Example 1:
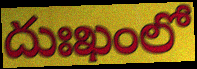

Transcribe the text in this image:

దుఃఖంలో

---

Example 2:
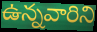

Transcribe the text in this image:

ఉన్నవారిని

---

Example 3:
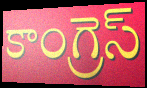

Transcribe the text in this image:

కాంగ్రెస్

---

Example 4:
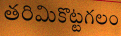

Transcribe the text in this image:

తరిమికొట్టగలం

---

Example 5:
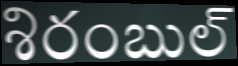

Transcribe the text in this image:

శిరంబుల్